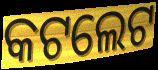
କଟଲେଟ